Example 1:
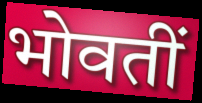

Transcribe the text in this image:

भोवतीं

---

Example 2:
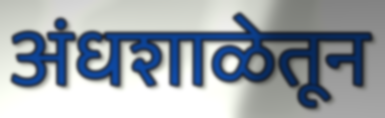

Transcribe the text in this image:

अंधशाळेतून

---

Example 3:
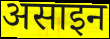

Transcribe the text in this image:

असाइन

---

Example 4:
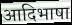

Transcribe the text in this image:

आदिभाषा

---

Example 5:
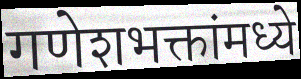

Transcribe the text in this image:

गणेशभक्तांमध्ये